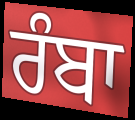
ਰੰਬਾ